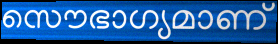
സൌഭാഗ്യമാണ്